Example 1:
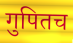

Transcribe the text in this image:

गुपितच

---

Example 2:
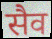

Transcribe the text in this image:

सैव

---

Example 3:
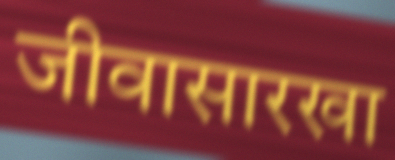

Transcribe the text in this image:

जीवासारखा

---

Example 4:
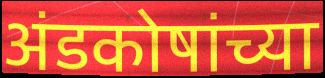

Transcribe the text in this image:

अंडकोषांच्या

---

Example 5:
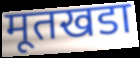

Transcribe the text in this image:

मूतखडा